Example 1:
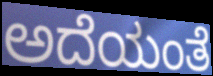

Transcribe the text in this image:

ಅದೆಯಂತೆ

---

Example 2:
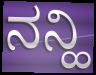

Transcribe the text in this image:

ನನ್ಹಿ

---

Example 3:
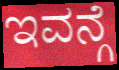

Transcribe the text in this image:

ಇವನ್ಗೆ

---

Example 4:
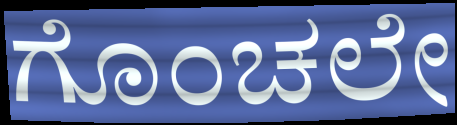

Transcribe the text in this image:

ಗೊಂಚಲೇ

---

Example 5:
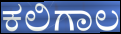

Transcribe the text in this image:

ಕಲಿಗಾಲ